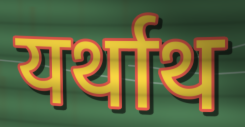
यर्थाथ